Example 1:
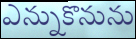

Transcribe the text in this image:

ఎన్నుకొనును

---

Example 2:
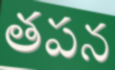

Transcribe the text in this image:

తపన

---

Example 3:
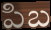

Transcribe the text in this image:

పిబ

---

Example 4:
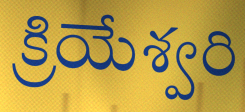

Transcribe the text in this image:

క్రియేశ్వరి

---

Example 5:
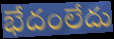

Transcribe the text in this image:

భేదంలేదు